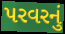
પરવરનું